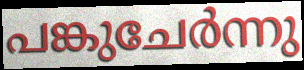
പങ്കുചേർന്നു